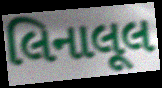
લિનાલૂલ